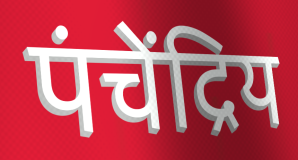
पंचेंद्रिय